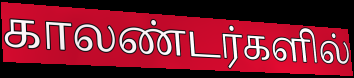
காலண்டர்களில்